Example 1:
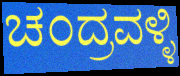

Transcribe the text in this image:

ಚಂದ್ರವಳ್ಳಿ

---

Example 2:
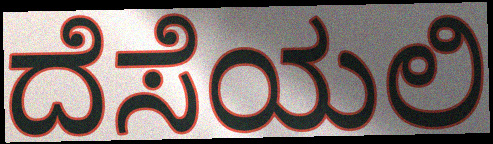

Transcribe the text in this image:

ದೆಸೆಯಲಿ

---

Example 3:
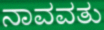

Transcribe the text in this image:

ನಾವವತು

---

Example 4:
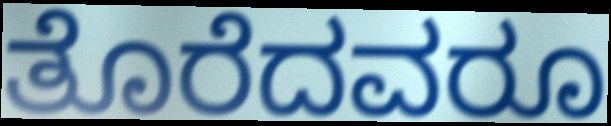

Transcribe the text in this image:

ತೊರೆದವರೂ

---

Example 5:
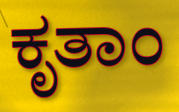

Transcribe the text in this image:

ಕೃತಾಂ